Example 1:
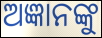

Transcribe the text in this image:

ଅଜ୍ଞାନଙ୍କୁ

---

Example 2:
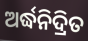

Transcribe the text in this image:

ଅର୍ଦ୍ଧନିଦ୍ରିତ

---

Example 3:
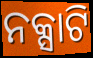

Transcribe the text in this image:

ନକ୍ସାଟି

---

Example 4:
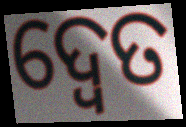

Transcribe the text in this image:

ଦ୍ବେତ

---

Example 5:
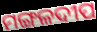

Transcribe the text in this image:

ମଙ୍ଗଳଦୀପ